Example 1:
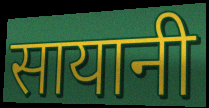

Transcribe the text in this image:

सायानी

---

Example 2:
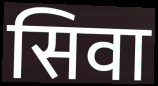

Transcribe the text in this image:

सिवा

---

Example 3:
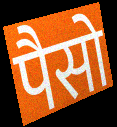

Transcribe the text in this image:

पैसो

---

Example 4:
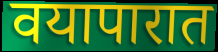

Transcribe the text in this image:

वयापारात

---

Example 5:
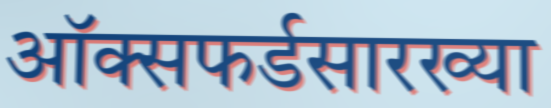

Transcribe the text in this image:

ऑक्सफर्डसारख्या